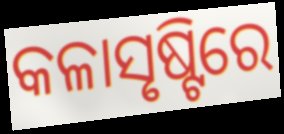
କଳାସୃଷ୍ଟିରେ